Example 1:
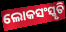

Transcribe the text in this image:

ଲୋକସଂସ୍କୃତି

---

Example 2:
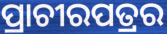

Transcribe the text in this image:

ପ୍ରାଚୀରପତ୍ରର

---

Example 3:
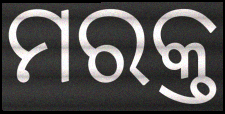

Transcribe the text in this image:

ମରକ୍ତ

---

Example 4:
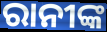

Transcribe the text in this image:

ରାନୀଙ୍କ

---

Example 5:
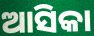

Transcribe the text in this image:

ଆସିକା